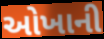
ઓખાની